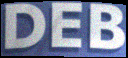
DEB